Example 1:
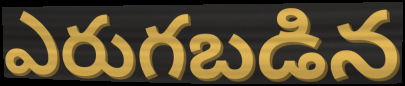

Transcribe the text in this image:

ఎరుగబడిన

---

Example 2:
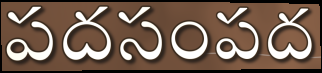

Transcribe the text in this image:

పదసంపద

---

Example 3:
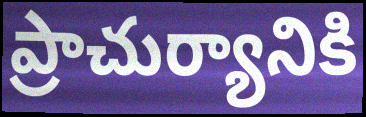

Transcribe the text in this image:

ప్రాచుర్యానికి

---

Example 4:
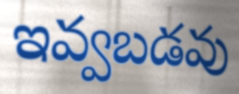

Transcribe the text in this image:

ఇవ్వబడవు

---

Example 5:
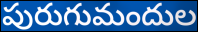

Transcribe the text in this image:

పురుగుమందుల